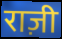
राज़ी